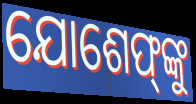
ଯୋଶେଫ୍‌ଙ୍କୁ